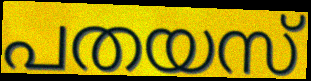
പതയസ്